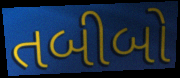
તબીબો